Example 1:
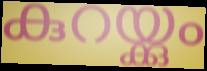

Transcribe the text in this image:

കുറയ്ക്കും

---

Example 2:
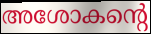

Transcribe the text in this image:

അശോകന്റെ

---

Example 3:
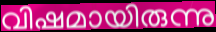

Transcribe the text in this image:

വിഷമായിരുന്നു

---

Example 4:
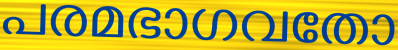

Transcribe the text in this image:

പരമഭാഗവതോ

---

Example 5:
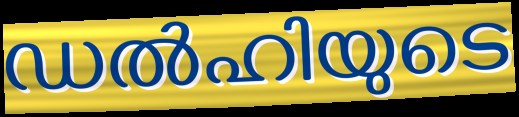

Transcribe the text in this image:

ഡൽഹിയുടെ